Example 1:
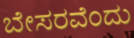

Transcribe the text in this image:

ಬೇಸರವೆಂದು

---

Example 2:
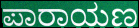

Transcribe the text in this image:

ಪಾರಾಯಣ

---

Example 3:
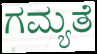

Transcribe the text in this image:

ಗಮ್ಯತೆ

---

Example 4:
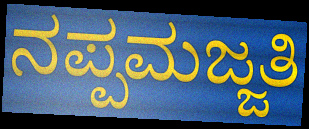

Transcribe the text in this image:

ನಪ್ಪಮಜ್ಜತಿ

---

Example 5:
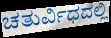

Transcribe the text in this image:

ಚತುರ್ವಿಧದಲ್ಲಿ